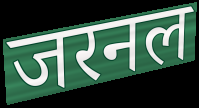
जरनल